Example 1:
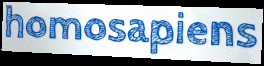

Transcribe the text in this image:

homosapiens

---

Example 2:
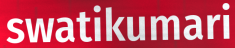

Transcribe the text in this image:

swatikumari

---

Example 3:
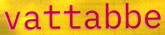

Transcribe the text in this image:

vattabbe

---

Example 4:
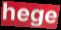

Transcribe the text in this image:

hege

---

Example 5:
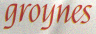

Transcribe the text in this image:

groynes